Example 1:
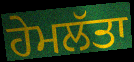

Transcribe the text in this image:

ਹੇਮਲੱਤਾ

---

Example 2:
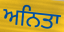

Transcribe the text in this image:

ਅਨਿਤਾ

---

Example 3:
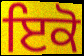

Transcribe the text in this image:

ਇਕੋ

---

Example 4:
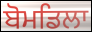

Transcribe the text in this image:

ਬੋਮਡਿਲਾ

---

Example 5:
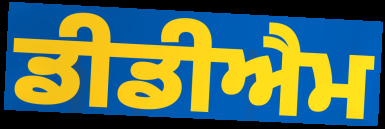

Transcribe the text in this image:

ਡੀਡੀਐਮ